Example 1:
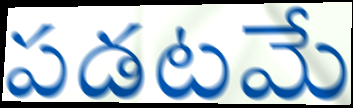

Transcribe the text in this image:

పడటమే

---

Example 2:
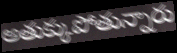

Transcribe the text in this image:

అతుక్కుపోతున్నారు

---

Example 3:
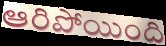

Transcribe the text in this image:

ఆరిపోయింది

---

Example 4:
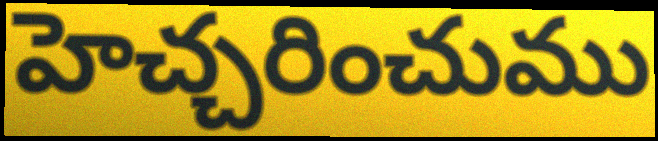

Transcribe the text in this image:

హెచ్చరించుము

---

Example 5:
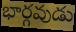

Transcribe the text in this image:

భార్గవుడు